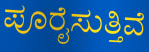
ಪೂರೈಸುತ್ತಿವೆ